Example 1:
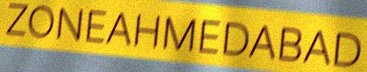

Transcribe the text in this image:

ZONEAHMEDABAD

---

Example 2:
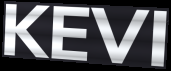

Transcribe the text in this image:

KEVI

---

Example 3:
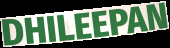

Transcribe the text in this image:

DHILEEPAN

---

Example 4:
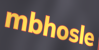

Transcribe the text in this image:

mbhosle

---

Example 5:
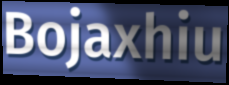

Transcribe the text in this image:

Bojaxhiu